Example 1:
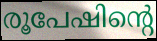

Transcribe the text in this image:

രൂപേഷിന്റെ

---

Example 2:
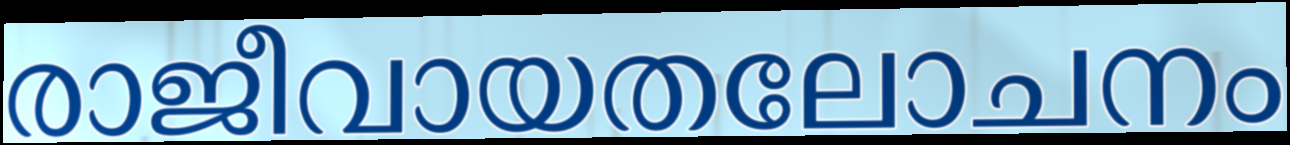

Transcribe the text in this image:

രാജീവായതലോചനം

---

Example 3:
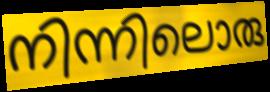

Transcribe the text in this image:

നിന്നിലൊരു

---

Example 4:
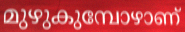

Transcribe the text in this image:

മുഴുകുമ്പോഴാണ്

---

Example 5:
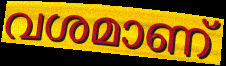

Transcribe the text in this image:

വശമാണ്